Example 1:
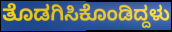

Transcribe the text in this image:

ತೊಡಗಿಸಿಕೊಂಡಿದ್ದಳು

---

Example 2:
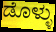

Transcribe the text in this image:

ಡೊಳ್ಳು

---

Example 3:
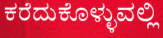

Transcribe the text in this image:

ಕರೆದುಕೊಳ್ಳುವಲ್ಲಿ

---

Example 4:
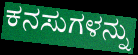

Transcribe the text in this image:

ಕನಸುಗಳನ್ನು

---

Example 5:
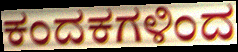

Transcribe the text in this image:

ಕಂದಕಗಳಿಂದ